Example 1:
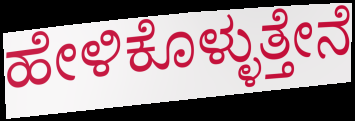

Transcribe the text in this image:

ಹೇಳಿಕೊಳ್ಳುತ್ತೇನೆ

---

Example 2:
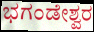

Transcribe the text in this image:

ಭಗಂಡೇಶ್ವರ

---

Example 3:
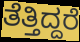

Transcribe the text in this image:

ತೆತ್ತಿದ್ದರೆ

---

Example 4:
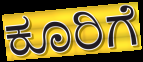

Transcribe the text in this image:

ಕೂರಿಗೆ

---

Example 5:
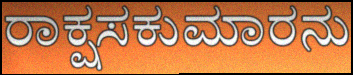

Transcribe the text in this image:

ರಾಕ್ಷಸಕುಮಾರನು